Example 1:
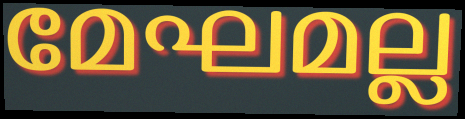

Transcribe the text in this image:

മേഘമല്ല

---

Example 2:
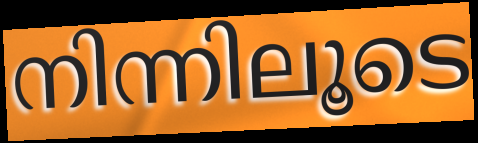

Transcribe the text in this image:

നിന്നിലൂടെ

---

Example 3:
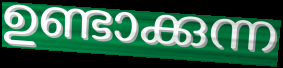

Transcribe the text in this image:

ഉണ്ടാക്കുന്ന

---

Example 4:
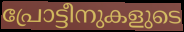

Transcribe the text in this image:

പ്രോട്ടീനുകളുടെ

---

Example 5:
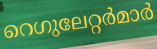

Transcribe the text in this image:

റെഗുലേറ്റർമാർ